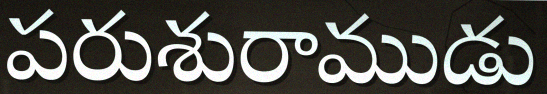
పరుశురాముడు